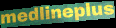
medlineplus